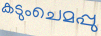
കടുംചെമപ്പു